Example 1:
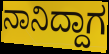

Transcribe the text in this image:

ನಾನಿದ್ದಾಗ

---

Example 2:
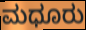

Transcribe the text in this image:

ಮಧೂರು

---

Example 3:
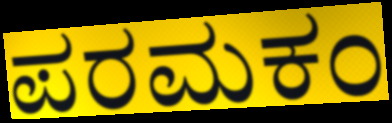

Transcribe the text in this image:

ಪರಮಕಂ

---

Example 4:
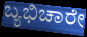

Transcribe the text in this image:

ಬ್ಯಭಿಚಾರೇ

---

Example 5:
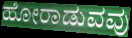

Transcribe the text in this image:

ಹೋರಾಡುವವು